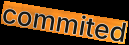
commited